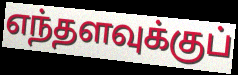
எந்தளவுக்குப்